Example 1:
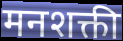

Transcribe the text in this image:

मनशक्ती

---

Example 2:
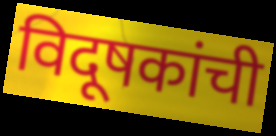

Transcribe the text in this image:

विदूषकांची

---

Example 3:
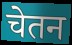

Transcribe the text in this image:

चेतन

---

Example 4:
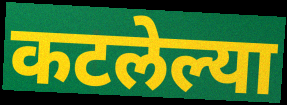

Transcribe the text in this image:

कटलेल्या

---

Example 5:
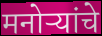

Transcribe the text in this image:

मनोऱ्यांचे